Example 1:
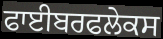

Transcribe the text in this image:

ਫਾਈਬਰਫਲੇਕਸ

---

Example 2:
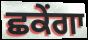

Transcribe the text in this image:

ਛਕੇਂਗਾ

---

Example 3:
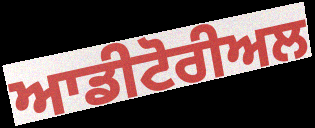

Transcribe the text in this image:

ਆਡੀਟੋਰੀਅਲ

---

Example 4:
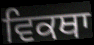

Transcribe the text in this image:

ਵਿਕਥਾ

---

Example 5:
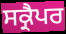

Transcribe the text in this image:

ਸਕ੍ਰੈਪਰ